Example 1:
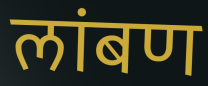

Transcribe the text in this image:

लांबण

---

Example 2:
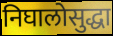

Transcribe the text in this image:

निघालोसुद्धा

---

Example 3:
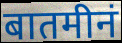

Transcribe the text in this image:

बातमीनं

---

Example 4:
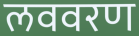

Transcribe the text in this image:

लववरण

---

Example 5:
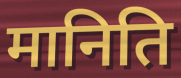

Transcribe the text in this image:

मानिति